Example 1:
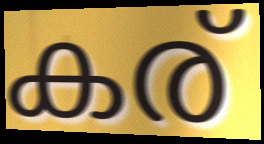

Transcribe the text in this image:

കര്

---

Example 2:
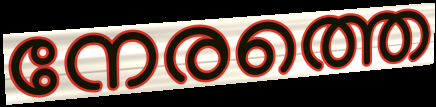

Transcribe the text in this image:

നേരത്തെ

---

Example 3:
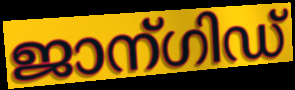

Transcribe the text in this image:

ജാന്ഗിഡ്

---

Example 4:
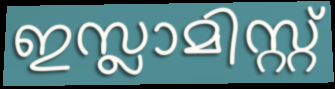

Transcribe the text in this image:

ഇസ്ലാമിസ്റ്റ്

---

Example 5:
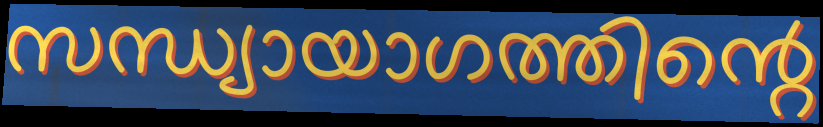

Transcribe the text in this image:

സന്ധ്യായാഗത്തിന്റെ